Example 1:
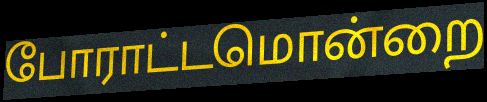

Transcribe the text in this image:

போராட்டமொன்றை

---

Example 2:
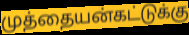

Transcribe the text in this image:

முத்தையன்கட்டுக்கு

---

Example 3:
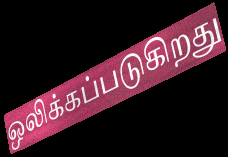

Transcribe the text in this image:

ஒலிக்கப்படுகிறது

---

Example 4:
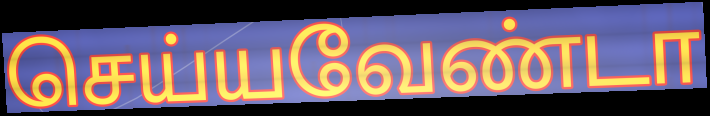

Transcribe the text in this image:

செய்யவேண்டா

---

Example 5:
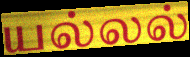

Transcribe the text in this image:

யல்லல்